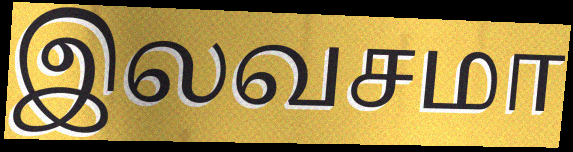
இலவசமா